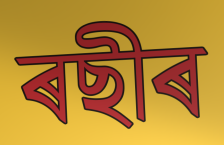
ৰছীৰ